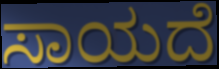
ಸಾಯದೆ